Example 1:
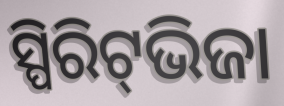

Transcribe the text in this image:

ସ୍ପିରିଟ୍‌ଭିଜା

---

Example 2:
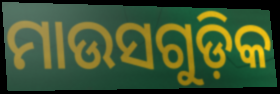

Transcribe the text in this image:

ମାଉସଗୁଡ଼ିକ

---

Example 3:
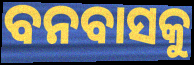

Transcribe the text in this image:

ବନବାସକୁ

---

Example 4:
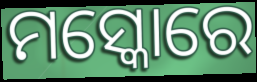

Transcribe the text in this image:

ମସ୍କୋରେ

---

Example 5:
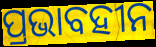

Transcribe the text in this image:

ପ୍ରଭାବହୀନ